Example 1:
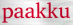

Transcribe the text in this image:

paakku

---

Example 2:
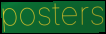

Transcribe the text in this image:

posters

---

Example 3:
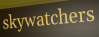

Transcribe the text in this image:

skywatchers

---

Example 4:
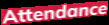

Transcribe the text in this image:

Attendance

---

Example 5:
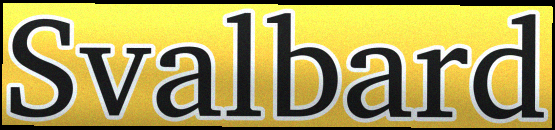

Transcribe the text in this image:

Svalbard